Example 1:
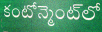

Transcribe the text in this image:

కంటోన్మెంట్‌లో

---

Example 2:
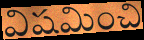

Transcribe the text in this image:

విషమించి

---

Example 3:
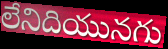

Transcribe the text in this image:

లేనిదియునగు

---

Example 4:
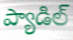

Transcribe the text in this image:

ప్యాడిల్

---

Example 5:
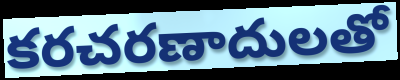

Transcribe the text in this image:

కరచరణాదులతో